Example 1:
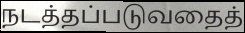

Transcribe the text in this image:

நடத்தப்படுவதைத்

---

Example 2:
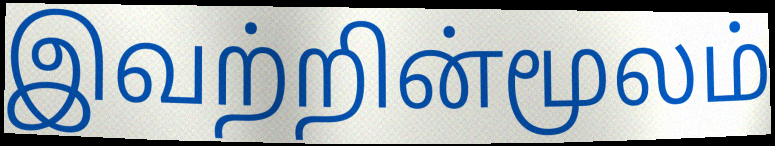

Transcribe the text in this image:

இவற்றின்மூலம்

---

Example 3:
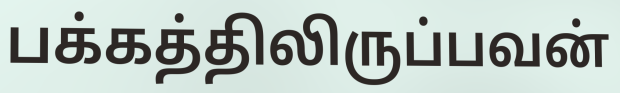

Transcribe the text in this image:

பக்கத்திலிருப்பவன்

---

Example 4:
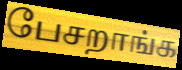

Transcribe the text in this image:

பேசறாங்க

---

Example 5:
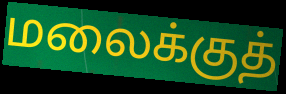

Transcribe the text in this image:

மலைக்குத்